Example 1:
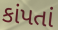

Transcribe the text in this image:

કાંપતાં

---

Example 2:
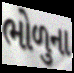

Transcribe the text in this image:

ભોળુના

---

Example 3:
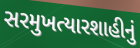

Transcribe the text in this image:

સરમુખત્યારશાહીનું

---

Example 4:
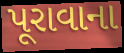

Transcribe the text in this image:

પૂરાવાના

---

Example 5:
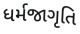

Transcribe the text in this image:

ધર્મજાગૃતિ